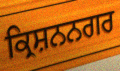
ਕ੍ਰਿਸ਼ਨਨਗਰ